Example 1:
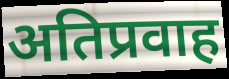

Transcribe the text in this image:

अतिप्रवाह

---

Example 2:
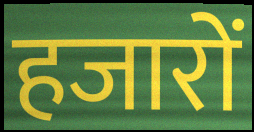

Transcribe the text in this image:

हजारों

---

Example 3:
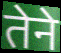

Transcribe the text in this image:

तेने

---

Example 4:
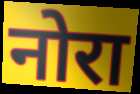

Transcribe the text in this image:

नोरा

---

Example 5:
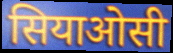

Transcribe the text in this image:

सियाओसी